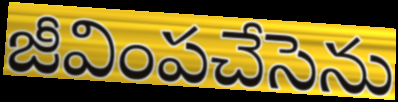
జీవింపచేసెను